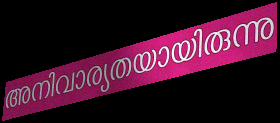
അനിവാര്യതയായിരുന്നു